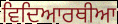
ਵਿਦਿਆਰਥੀਆ